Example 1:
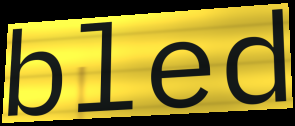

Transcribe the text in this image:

bled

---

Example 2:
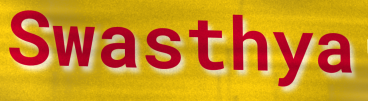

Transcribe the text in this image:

Swasthya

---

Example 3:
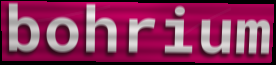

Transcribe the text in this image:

bohrium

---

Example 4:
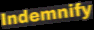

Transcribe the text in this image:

Indemnify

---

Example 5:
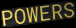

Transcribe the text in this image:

POWERS